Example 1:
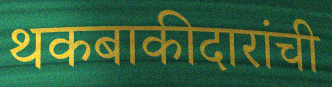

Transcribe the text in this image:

थकबाकीदारांची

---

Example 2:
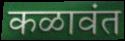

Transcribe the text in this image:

कळावंत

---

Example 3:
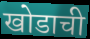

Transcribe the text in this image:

खोडाची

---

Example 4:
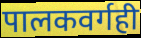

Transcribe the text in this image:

पालकवर्गही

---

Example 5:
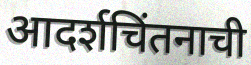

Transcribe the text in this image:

आदर्शचिंतनाची